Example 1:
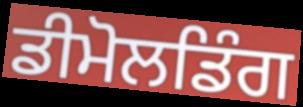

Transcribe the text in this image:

ਡੀਮੋਲਡਿੰਗ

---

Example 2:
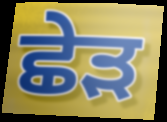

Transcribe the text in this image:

ਛੇੜ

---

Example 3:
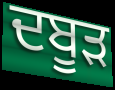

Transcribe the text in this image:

ਦਬੂੜ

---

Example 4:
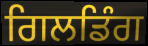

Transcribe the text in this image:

ਗਿਲਡਿੰਗ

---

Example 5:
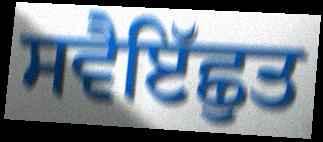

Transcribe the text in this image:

ਸਵੈਇੱਛੁਤ